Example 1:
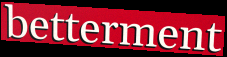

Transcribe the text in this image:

betterment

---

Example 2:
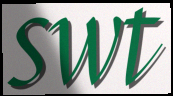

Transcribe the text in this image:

swt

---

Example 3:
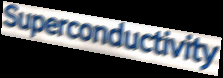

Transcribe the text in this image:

Superconductivity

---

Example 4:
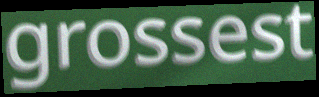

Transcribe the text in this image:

grossest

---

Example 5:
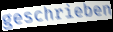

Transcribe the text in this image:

geschrieben